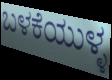
ಬಳಕೆಯುಳ್ಳ